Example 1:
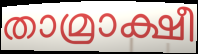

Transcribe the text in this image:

താമ്രാക്ഷീ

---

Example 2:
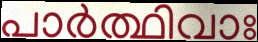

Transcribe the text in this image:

പാർത്ഥിവാഃ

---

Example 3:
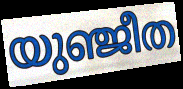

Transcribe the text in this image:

യുഞ്ജീത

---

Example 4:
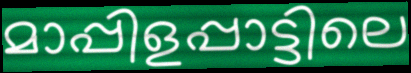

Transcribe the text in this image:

മാപ്പിളപ്പാട്ടിലെ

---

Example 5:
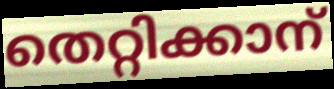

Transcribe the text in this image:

തെറ്റിക്കാന്